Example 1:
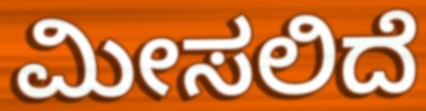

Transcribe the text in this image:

ಮೀಸಲಿದೆ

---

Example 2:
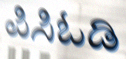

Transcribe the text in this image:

ಪಿಸಿಓಡಿ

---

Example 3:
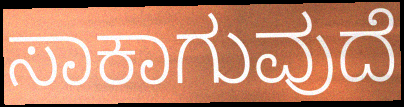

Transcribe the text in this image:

ಸಾಕಾಗುವುದೆ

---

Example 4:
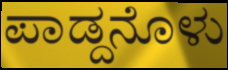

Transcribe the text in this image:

ಪಾಡ್ದನೊಳು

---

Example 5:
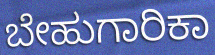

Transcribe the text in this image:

ಬೇಹುಗಾರಿಕಾ